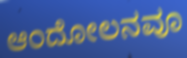
ಆಂದೋಲನವೂ